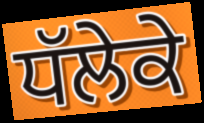
ਧੱਲੇਕੇ